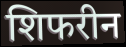
शिफरीन